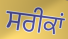
ਸਰੀਕਾਂ